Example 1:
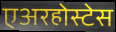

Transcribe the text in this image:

एअरहोस्टेस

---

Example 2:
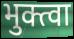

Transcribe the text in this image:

भुक्त्वा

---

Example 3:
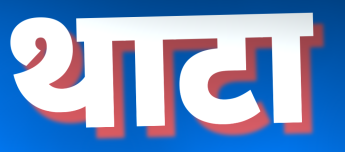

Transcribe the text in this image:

थाटा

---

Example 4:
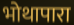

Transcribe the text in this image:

भोथापारा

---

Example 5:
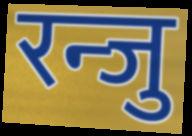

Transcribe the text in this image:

रन्जु